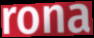
rona